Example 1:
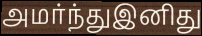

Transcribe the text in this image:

அமர்ந்துஇனிது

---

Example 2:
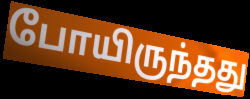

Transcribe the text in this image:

போயிருந்தது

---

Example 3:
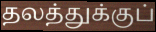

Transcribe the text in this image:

தலத்துக்குப்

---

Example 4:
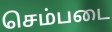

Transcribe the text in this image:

செம்படை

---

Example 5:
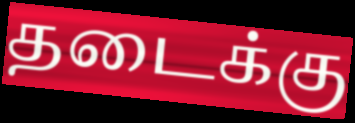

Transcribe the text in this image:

தடைக்கு